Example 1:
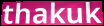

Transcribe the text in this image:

thakuk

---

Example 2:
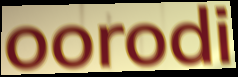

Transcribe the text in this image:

oorodi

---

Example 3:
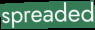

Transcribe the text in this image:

spreaded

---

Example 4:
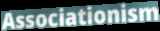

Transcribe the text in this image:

Associationism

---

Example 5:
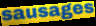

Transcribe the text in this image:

sausages